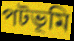
পটভূমি